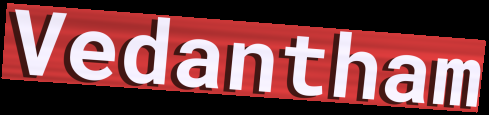
Vedantham